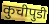
कुचीपुडी